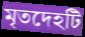
মৃতদেহটি